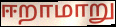
ஈறாமாறு